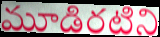
మూడిరటిని